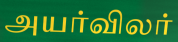
அயர்விலர்